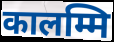
कालम्मि